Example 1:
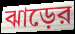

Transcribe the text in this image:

ঝাড়ের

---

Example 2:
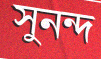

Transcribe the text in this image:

সুনন্দ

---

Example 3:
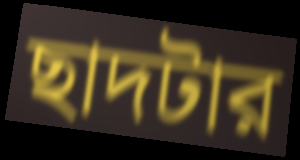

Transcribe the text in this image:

ছাদটার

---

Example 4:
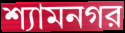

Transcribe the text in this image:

শ্যামনগর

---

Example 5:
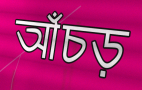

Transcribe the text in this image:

আঁচড়